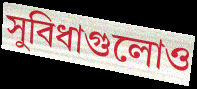
সুবিধাগুলোও